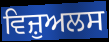
ਵਿਜ਼ੁਅਲਸ